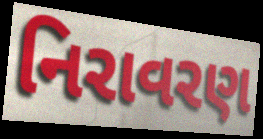
નિરાવરણ